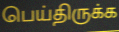
பெய்திருக்க